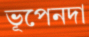
ভূপেনদা